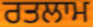
ਰਤਲਾਮ